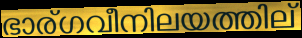
ഭാര്ഗവീനിലയത്തില്